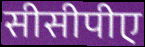
सीसीपीए